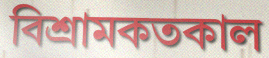
বিশ্রামকতকাল